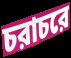
চরাচরে